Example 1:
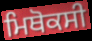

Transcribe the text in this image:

ਮਿਥੋਕਸੀ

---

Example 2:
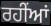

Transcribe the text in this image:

ਰਹੀਂਆਂ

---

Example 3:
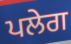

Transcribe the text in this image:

ਪਲੇਗ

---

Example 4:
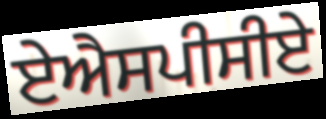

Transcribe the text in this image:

ਏਐਸਪੀਸੀਏ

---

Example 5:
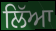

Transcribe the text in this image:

ਲਿੱਆ